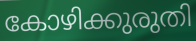
കോഴിക്കുരുതി